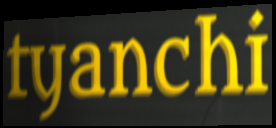
tyanchi